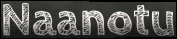
Naanotu